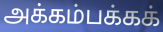
அக்கம்பக்கக்